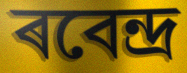
ৰবেন্দ্ৰ